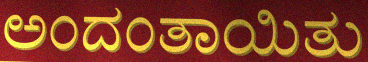
ಅಂದಂತಾಯಿತು